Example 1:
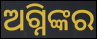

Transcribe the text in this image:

ଅଗ୍ନିଙ୍କର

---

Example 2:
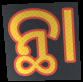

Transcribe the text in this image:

ନ୍ଥା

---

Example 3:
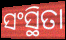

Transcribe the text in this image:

ସଂସ୍ଥିତା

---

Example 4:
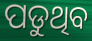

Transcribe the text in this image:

ପଡୁଥିବ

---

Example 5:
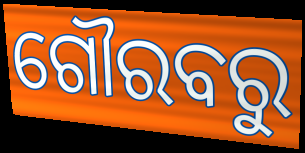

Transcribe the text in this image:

ଗୌରବରୁ